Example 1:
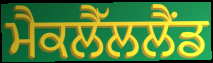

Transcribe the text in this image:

ਮੈਕਲੈੱਲਲੈਂਡ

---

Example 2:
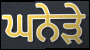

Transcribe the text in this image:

ਘਨੇੜੇ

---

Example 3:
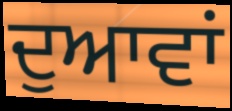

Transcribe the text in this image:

ਦੁਆਵਾਂ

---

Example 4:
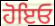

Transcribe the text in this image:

ਹੋਇਓ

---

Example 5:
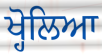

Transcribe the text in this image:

ਖ੍ਹੋਲਿਆ